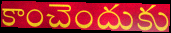
కాంచెందుకు